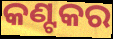
କଣ୍ଟକର